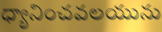
ధ్యానించవలయును